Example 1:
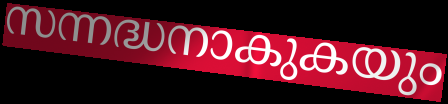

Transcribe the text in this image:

സന്നദ്ധനാകുകയും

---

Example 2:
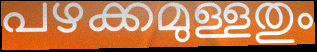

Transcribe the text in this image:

പഴക്കമുള്ളതും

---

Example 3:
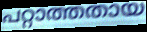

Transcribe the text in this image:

പറ്റാത്തതായ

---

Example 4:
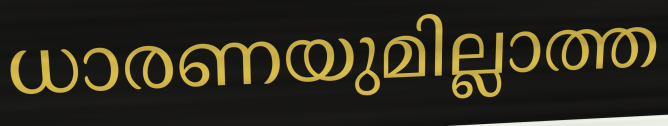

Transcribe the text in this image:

ധാരണയുമില്ലാത്ത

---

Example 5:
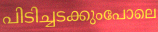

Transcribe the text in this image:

പിടിച്ചടക്കുംപോലെ